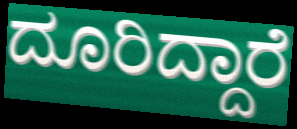
ದೂರಿದ್ದಾರೆ